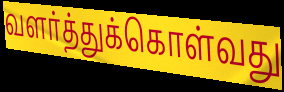
வளர்த்துக்கொள்வது